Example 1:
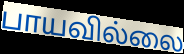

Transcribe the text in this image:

பாயவில்லை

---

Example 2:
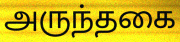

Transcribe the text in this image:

அருந்தகை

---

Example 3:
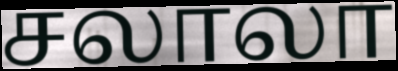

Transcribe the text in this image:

சலாலா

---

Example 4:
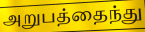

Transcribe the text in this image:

அறுபத்தைந்து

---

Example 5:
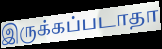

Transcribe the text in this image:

இருக்கப்படாதா